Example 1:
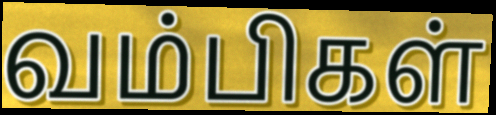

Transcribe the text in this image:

வம்பிகள்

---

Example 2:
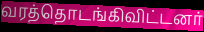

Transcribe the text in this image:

வரத்தொடங்கிவிட்டனர்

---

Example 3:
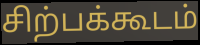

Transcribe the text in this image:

சிற்பக்கூடம்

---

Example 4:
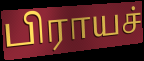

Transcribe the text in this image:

பிராயச்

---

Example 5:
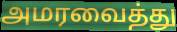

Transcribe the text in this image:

அமரவைத்து